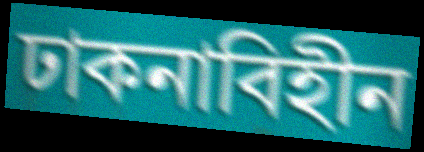
ঢাকনাবিহীন